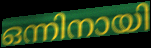
ഒന്നിനായി